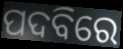
ପଦବିରେ